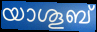
യാശൂബ്